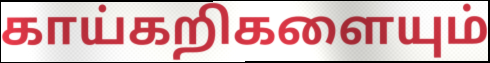
காய்கறிகளையும்